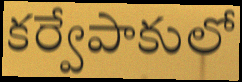
కర్వేపాకులో